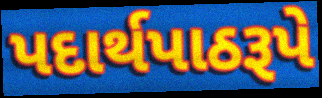
પદાર્થપાઠરૂપે